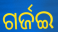
ଗର୍ଜଇ